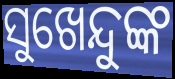
ସୁଖେନ୍ଦୁଙ୍କ